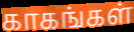
காகங்கள்